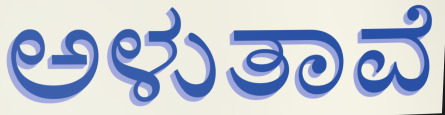
ಅಳುತಾವೆ